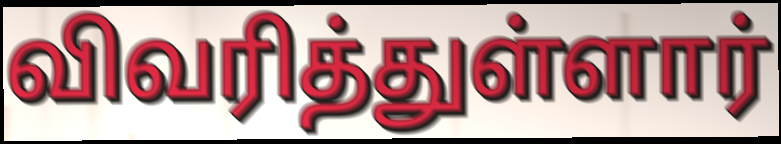
விவரித்துள்ளார்